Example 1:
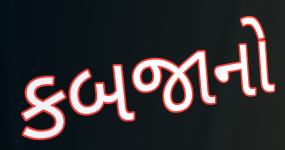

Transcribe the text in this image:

કબજાનો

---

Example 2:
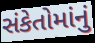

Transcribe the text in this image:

સંકેતોમાંનું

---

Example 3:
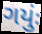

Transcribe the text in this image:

ગયુંઃ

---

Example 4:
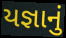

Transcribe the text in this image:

યજ્ઞાનું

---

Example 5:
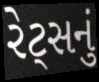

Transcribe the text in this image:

રેટ્સનું